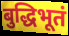
बुद्धिभूतं